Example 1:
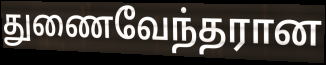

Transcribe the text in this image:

துணைவேந்தரான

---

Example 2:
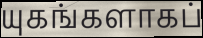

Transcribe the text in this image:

யுகங்களாகப்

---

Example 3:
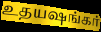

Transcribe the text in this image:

உதயஷங்கர்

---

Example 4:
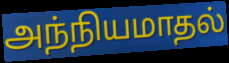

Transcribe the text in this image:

அந்நியமாதல்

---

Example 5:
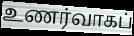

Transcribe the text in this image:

உணர்வாகப்